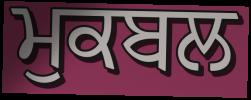
ਮੁਕਬਲ